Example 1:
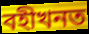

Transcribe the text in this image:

বহীখনত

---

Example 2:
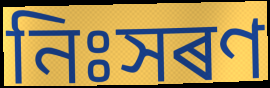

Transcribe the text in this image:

নিঃসৰণ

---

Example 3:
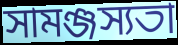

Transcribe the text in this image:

সামঞ্জস্যতা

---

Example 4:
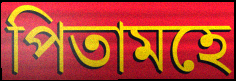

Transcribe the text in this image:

পিতামহে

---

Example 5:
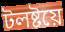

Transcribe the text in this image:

টলষ্টয়ে